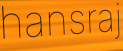
hansraj